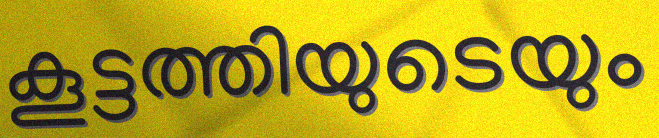
കൂട്ടത്തിയുടെയും